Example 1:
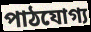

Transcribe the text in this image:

পাঠযোগ্য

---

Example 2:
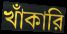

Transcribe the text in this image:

খাঁকারি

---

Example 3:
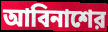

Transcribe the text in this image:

আবিনাশের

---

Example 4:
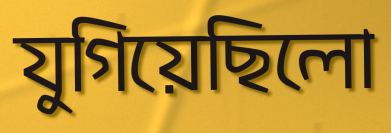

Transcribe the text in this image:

যুগিয়েছিলো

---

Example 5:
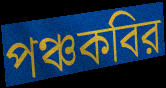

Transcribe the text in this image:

পঞ্চকবির